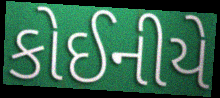
કોઈનીયે